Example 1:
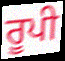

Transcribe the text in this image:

ਰੂਪੀ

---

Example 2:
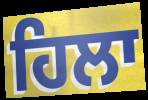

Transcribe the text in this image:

ਹਿਲਾ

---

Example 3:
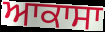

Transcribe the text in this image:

ਆਕਾਸਾ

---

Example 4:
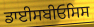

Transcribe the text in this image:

ਡਾਈਸਬੀਓਸਿਸ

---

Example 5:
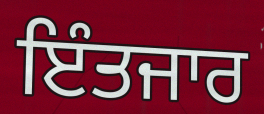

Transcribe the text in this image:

ਇੰਤਜਾਰ